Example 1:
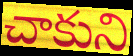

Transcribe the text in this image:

చాకుని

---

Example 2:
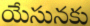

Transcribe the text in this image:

యేసునకు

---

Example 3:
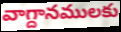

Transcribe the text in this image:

వాగ్దానములకు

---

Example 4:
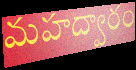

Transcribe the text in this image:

మహద్వారం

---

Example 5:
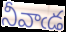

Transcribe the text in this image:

నీవాఁడ